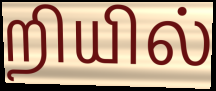
றியில்